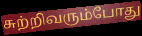
சுற்றிவரும்போது